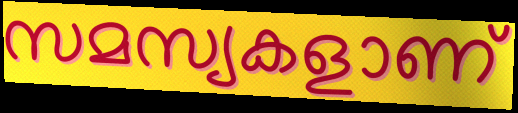
സമസ്യകളാണ്